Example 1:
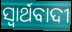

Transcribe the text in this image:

ସ୍ୱାର୍ଥବାଦୀ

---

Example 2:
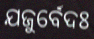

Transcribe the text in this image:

ଯଜୁର୍ବେଦଃ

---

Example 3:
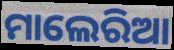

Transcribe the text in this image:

ମାଲେରିଆ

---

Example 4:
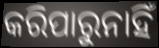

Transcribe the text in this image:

କରିପାରୁନାହିଁ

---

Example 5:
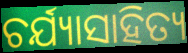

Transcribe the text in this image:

ଚର୍ଯ୍ୟାସାହିତ୍ୟ